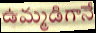
ఉమ్మడిగానే